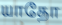
யாதோ